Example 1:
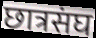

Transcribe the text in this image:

छात्रसंघ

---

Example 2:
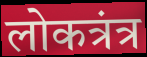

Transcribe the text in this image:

लोकत्रंत्र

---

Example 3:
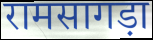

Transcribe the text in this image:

रामसागड़ा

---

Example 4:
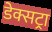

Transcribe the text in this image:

डेक्सट्रा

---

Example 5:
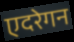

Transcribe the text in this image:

एदरेगन